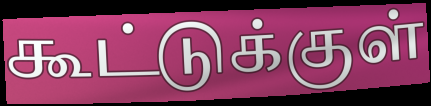
கூட்டுக்குள்